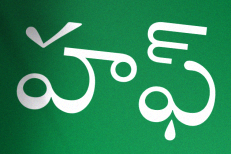
హఫ్